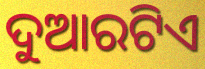
ଦୁଆରଟିଏ